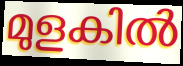
മുളകിൽ